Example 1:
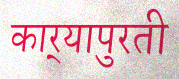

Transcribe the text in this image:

कार्यापुरती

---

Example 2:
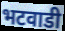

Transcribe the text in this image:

भटवाडी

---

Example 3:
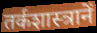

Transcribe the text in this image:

तर्कशास्त्रानें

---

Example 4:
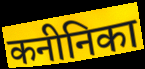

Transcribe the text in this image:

कनीनिका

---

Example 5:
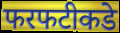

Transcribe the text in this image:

फरफटीकडे